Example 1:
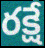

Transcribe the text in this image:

రక్షే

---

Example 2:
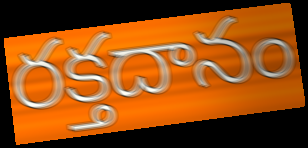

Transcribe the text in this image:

రక్తదానం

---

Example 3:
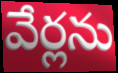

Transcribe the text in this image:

వేర్లను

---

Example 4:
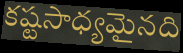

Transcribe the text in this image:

కష్టసాధ్యమైనది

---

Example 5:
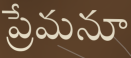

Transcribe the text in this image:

ప్రేమనూ